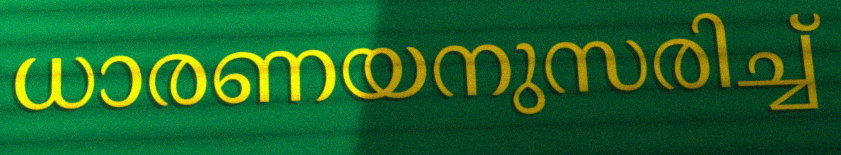
ധാരണയനുസരിച്ച്